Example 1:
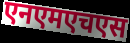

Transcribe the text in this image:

एनएमएचएस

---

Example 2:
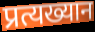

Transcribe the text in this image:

प्रत्यख्यान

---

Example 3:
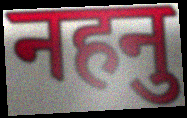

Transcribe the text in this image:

नहनु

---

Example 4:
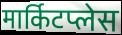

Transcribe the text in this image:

मार्किटप्लेस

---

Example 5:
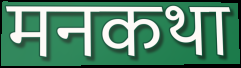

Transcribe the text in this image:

मनकथा